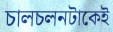
চালচলনটাকেই